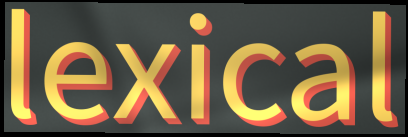
lexical